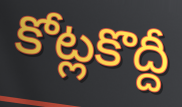
కోట్లకొద్దీ